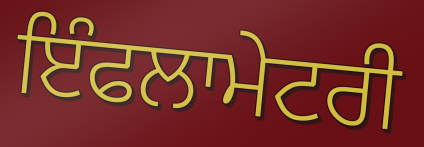
ਇੰਫਲਾਮੇਟਰੀ